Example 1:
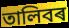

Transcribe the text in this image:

তালিবৰ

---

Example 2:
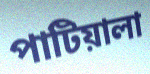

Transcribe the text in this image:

পাটিয়ালা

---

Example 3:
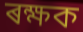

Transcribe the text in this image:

ৰক্ষক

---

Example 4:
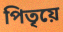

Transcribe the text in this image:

পিতৃয়ে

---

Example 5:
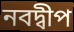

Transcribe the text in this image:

নবদ্বীপ